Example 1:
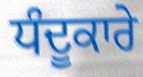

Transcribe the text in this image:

ਧੰਦੂਕਾਰੇ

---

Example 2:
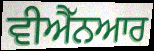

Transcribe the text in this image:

ਵੀਐੱਨਆਰ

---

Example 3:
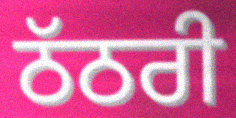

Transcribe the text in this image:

ਠੱਠਰੀ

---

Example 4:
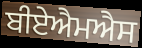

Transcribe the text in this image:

ਬੀਏਐਮਐਸ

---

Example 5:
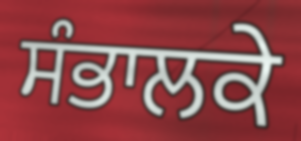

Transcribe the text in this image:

ਸੰਭਾਲਕੇ